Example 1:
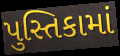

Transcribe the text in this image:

પુસ્તિકામાં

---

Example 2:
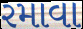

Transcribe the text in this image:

રમાવા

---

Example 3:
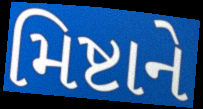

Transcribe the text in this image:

મિષ્ટાને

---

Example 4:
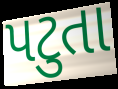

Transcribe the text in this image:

પટુતા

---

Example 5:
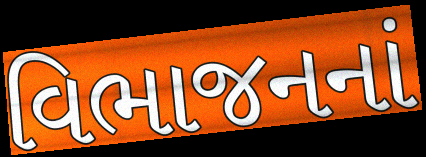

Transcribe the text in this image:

વિભાજનનાં